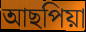
আছপিয়া